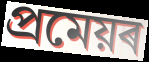
প্ৰমেয়ৰ